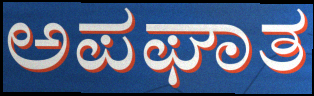
ಅಪಘಾತ